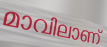
മാവിലാണ്